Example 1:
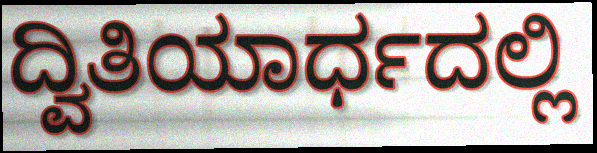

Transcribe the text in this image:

ದ್ವಿತಿಯಾರ್ಧದಲ್ಲಿ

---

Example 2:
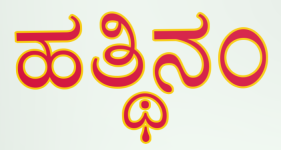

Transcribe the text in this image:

ಹತ್ಥಿನಂ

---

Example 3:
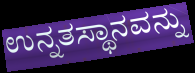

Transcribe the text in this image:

ಉನ್ನತಸ್ಥಾನವನ್ನು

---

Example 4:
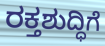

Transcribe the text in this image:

ರಕ್ತಶುದ್ಧಿಗೆ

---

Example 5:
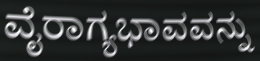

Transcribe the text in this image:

ವೈರಾಗ್ಯಭಾವವನ್ನು